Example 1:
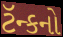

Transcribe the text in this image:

ટૅન્કનો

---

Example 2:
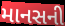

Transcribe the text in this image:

માનસની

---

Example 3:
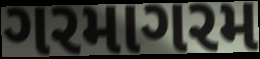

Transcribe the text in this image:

ગરમાગરમ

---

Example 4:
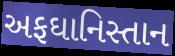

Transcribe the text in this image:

અફઘાનિસ્તાન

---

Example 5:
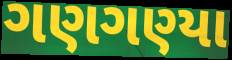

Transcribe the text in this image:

ગણગણ્યા